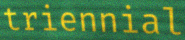
triennial